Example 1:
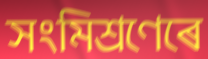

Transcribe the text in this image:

সংমিশ্ৰণেৰে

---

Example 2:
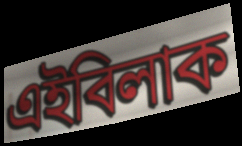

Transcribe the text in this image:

এইবিলাক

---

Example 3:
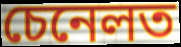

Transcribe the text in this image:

চেনেলত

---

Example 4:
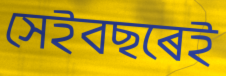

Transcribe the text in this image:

সেইবছৰেই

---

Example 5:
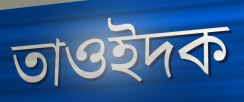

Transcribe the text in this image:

তাওইদক